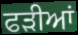
ਫੜੀਆਂ